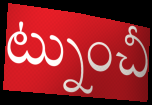
ట్నుంచీ